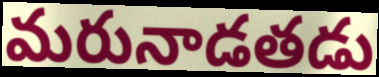
మరునాడతడు